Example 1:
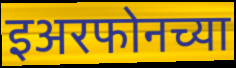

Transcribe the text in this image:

इअरफोनच्या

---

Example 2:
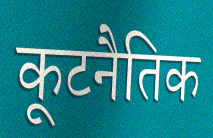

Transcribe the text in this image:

कूटनैतिक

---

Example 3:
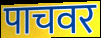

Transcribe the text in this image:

पाचवर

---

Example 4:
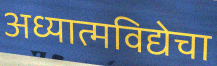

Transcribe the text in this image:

अध्यात्मविद्येचा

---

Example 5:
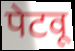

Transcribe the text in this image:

पेटवू